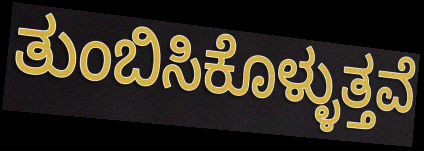
ತುಂಬಿಸಿಕೊಳ್ಳುತ್ತವೆ